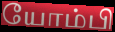
யோம்பி